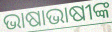
ଭାଷାଭାଷୀଙ୍କ